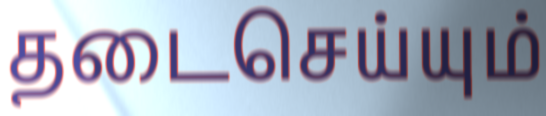
தடைசெய்யும்